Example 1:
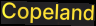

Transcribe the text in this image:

Copeland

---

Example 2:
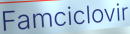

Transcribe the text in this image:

Famciclovir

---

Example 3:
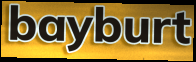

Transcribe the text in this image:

bayburt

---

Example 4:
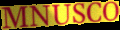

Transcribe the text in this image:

MNUSCO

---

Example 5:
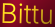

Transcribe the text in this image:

Bittu